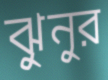
ঝুনুর